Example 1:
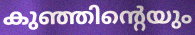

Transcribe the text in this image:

കുഞ്ഞിന്റെയും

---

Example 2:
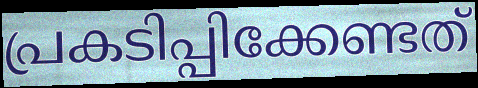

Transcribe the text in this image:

പ്രകടിപ്പിക്കേണ്ടത്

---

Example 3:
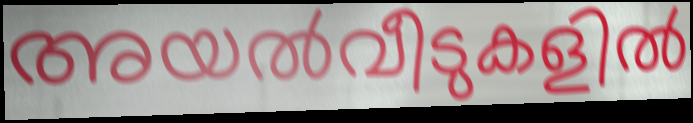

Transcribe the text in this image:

അയൽവീടുകളിൽ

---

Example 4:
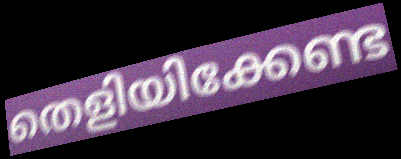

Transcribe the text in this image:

തെളിയിക്കേണ്ട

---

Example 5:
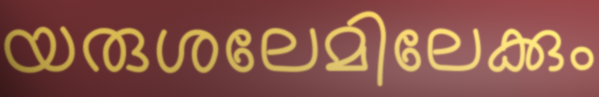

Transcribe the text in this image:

യരുശലേമിലേക്കും